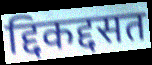
द्दिकद्दसत